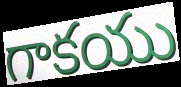
గాకయు